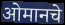
ओमानचे